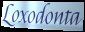
Loxodonta